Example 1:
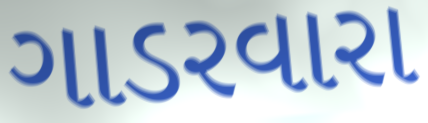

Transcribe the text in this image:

ગાડરવારા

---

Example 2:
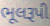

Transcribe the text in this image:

ભૂલરૂપી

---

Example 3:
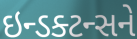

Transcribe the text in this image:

ઇન્ડક્ટન્સને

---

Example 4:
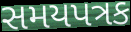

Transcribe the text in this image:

સમયપત્રક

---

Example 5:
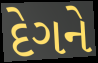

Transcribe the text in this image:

દેગને